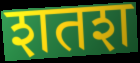
शतश